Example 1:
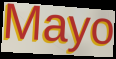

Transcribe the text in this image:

Mayo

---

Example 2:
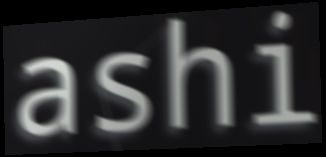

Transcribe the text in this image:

ashi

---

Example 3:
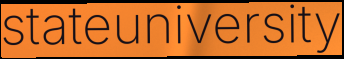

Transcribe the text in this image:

stateuniversity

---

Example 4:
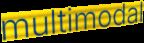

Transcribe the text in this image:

multimodal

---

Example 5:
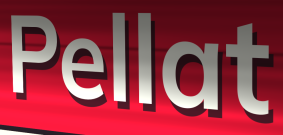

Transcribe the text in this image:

Pellat